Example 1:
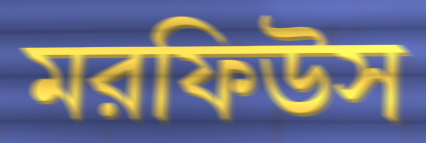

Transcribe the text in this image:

মরফিউস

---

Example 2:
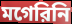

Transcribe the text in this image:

মগেরিনি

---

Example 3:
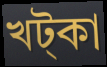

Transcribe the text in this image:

খট্কা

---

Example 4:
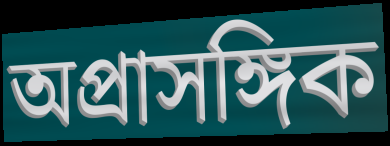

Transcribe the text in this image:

অপ্রাসঙ্গিক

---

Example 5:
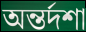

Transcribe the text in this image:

অন্তর্দশা